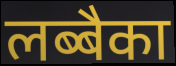
लब्बैका